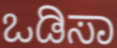
ಒಡಿಸಾ